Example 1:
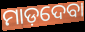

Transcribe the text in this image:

ମାଡ଼ଦେବା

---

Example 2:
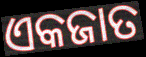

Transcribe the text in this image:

ଏକଜାତ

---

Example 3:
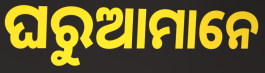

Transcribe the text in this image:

ଘରୁଆମାନେ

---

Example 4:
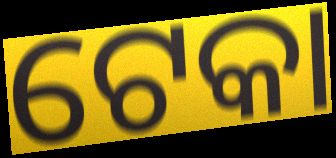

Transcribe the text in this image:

ଟେକା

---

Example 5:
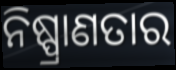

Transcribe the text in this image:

ନିଷ୍ପ୍ରାଣତାର